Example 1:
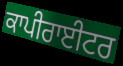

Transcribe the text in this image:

ਕਾਪੀਰਾਈਟਰ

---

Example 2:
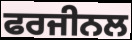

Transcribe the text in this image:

ਫਰਜੀਨਲ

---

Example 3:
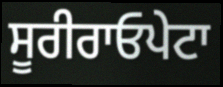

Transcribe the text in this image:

ਸੂਰੀਰਾਓਪੇਟਾ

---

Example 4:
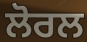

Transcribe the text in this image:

ਲੋਰਲ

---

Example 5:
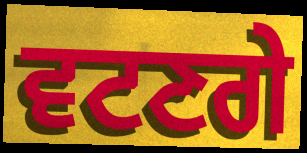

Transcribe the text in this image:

ਵਟਣਗੇ